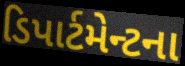
ડિપાર્ટમેન્ટના